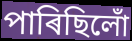
পাৰিছিলোঁ